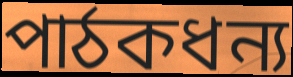
পাঠকধন্য